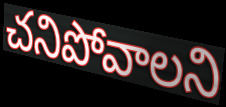
చనిపోవాలని